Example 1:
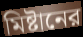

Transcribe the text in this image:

মিষ্টানের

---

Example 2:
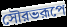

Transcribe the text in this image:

সৌরভরূপে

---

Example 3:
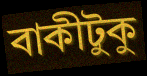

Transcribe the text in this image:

বাকীটুকু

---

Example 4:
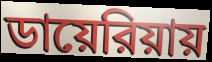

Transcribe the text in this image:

ডায়েরিয়ায়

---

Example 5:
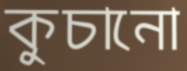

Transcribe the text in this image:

কুচানো